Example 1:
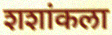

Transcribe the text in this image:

शशांकला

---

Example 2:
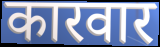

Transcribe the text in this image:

कारवार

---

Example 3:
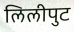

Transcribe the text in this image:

लिलीपुट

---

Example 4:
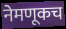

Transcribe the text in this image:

नेमणूकच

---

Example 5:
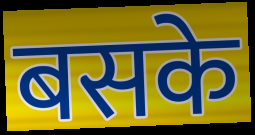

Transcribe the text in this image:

बसके